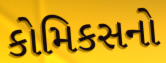
કોમિકસનો